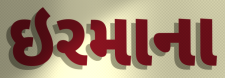
ઇરમાના